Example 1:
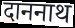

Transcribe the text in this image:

दाननाथ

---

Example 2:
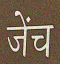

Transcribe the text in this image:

जेंच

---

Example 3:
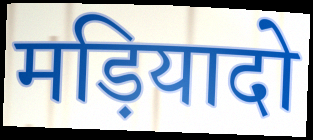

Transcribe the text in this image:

मड़ियादो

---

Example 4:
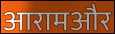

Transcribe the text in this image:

आरामऔर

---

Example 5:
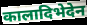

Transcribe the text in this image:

कालादिभेदेन